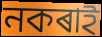
নকৰাই